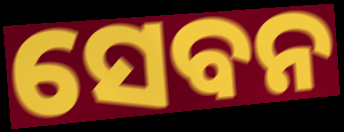
ସେବନ